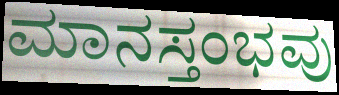
ಮಾನಸ್ತಂಭವು